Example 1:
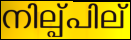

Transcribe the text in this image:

നില്പ്പില്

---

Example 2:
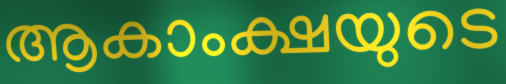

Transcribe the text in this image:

ആകാംക്ഷയുടെ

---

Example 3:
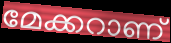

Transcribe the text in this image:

മേക്കറാണ്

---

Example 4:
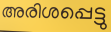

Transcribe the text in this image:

അരിശപ്പെട്ടു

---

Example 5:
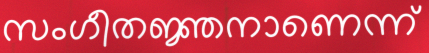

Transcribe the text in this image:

സംഗീതജ്ഞനാണെന്ന്